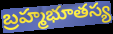
బ్రహ్మభూతస్య